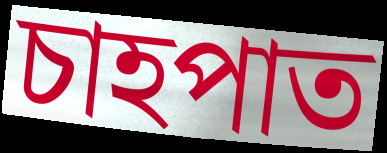
চাহপাত